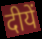
दीयें